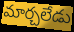
మార్చలేడు